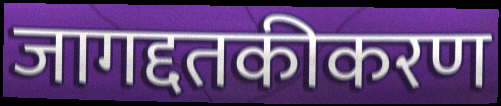
जागद्दतकीकरण